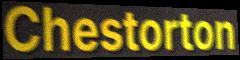
Chestorton